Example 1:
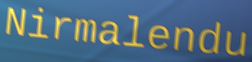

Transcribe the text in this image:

Nirmalendu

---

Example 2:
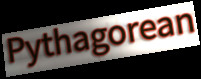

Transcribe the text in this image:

Pythagorean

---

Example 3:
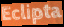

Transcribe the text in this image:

Eclipta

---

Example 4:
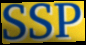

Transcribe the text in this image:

SSP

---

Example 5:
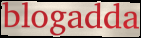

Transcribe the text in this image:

blogadda